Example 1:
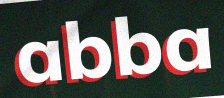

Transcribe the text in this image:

abba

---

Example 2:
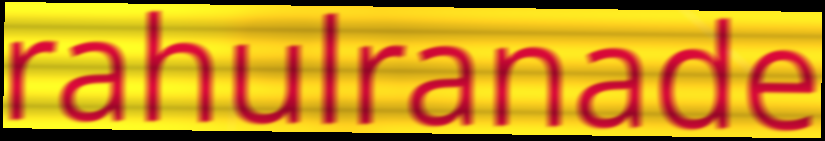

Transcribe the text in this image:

rahulranade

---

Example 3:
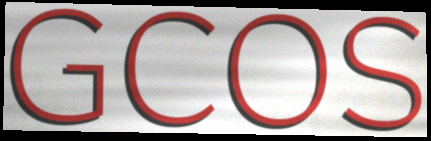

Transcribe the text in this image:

GCOS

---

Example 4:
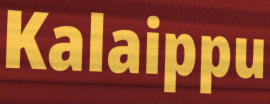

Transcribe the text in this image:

Kalaippu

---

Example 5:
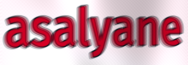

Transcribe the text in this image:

asalyane